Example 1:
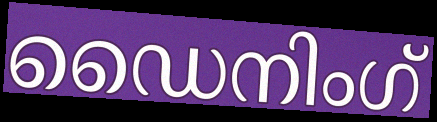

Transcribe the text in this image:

ഡൈനിംഗ്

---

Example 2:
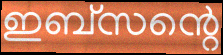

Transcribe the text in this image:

ഇബ്സന്റെ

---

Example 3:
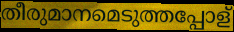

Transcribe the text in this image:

തീരുമാനമെടുത്തപ്പോള്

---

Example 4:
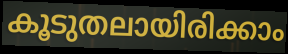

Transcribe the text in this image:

കൂടുതലായിരിക്കാം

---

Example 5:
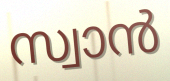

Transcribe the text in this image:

സ്വാൻ